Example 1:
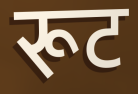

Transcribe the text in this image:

रूट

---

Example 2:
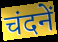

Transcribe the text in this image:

चंदनें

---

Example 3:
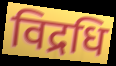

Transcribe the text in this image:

विद्रधि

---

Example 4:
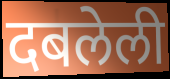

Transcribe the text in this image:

दबलेली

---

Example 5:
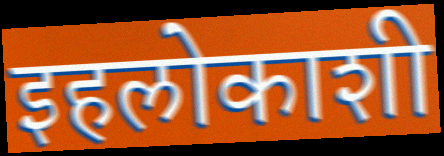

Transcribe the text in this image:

इहलोकाशी